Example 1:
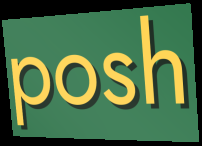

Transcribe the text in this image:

posh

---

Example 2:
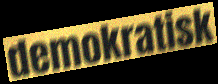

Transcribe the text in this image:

demokratisk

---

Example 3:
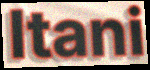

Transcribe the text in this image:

Itani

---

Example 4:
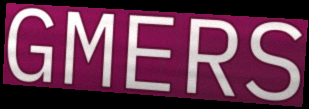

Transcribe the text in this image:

GMERS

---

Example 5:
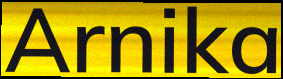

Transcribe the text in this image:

Arnika